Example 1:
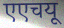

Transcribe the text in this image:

एएचयू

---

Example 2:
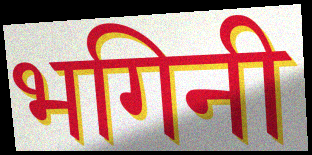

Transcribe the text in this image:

भगिनी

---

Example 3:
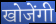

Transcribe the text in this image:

खोजेंगी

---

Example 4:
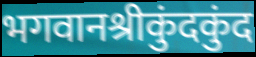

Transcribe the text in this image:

भगवानश्रीकुंदकुंद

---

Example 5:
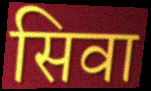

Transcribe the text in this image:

सिवा